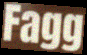
Fagg